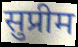
सुप्रीम